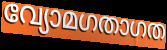
വ്യോമഗതാഗത